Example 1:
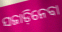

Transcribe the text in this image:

ସଜାଡ଼ିନେବା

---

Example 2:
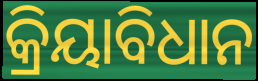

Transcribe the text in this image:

କ୍ରିୟାବିଧାନ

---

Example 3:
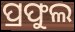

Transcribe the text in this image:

ପ୍ରଫୁଲ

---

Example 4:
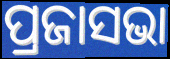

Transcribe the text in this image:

ପ୍ରଜାସଭା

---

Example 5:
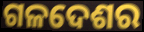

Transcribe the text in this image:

ଗଳଦେଶର